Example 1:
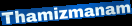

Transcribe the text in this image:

Thamizmanam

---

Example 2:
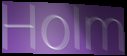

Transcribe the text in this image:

Holm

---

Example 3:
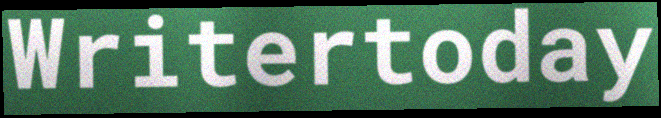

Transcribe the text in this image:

Writertoday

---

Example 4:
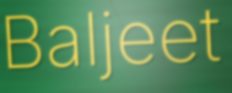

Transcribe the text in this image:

Baljeet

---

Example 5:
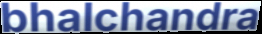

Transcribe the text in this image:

bhalchandra